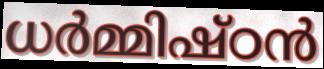
ധർമ്മിഷ്ഠൻ